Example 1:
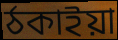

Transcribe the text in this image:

ঠকাইয়া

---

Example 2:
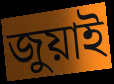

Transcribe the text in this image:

জুয়াই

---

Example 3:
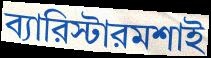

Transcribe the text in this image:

ব্যারিস্টারমশাই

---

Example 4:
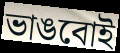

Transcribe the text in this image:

ভাঙবোই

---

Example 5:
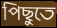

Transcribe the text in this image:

পিছুতে